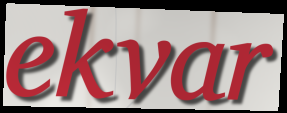
ekvar